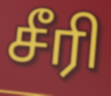
சீரி